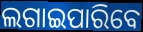
ଲଗାଇପାରିବେ